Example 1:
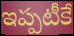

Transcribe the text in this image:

ఇప్పటీకే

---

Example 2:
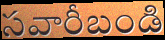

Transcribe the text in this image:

సవారీబండి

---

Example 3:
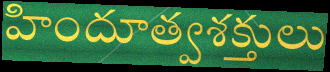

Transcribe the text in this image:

హిందూత్వశక్తులు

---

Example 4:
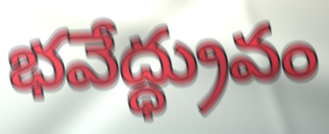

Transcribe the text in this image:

భవేద్ధ్రువం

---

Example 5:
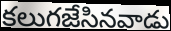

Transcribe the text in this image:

కలుగజేసినవాడు